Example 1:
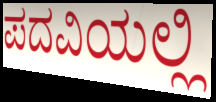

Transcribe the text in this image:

ಪದವಿಯಲ್ಲಿ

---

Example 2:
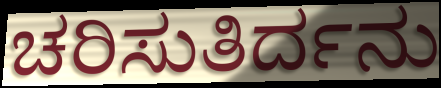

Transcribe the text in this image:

ಚರಿಸುತಿರ್ದನು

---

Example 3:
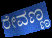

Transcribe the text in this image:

ರೇವಣ್ಣ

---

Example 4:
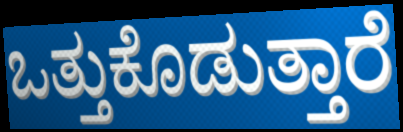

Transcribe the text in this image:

ಒತ್ತುಕೊಡುತ್ತಾರೆ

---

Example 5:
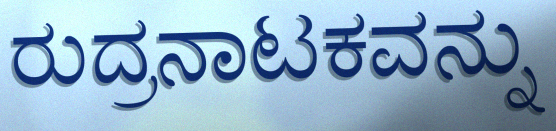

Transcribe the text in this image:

ರುದ್ರನಾಟಕವನ್ನು